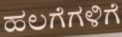
ಹಲಗೆಗಳಿಗೆ